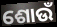
ଶୋଉଁ